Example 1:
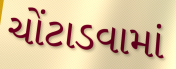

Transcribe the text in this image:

ચોંટાડવામાં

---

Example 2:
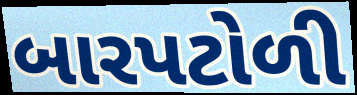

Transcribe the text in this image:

બારપટોળી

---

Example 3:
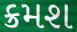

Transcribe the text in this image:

ક્રમશ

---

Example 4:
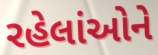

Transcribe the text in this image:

રહેલાંઓને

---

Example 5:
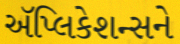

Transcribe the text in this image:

ઍપ્લિકેશન્સને